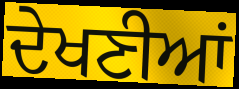
ਦੇਖਣੀਆਂ